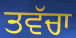
ਤਵੱਚਾ